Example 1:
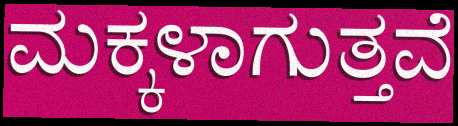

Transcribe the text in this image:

ಮಕ್ಕಳಾಗುತ್ತವೆ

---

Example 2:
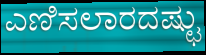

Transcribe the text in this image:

ಎಣಿಸಲಾರದಷ್ಟು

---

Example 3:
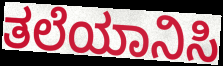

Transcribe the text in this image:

ತಲೆಯಾನಿಸಿ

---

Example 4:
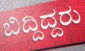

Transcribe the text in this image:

ಬಿದ್ದಿದ್ದರು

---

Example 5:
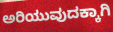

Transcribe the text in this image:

ಅರಿಯುವುದಕ್ಕಾಗಿ